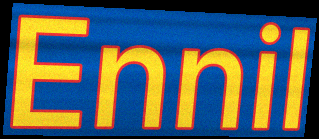
Ennil